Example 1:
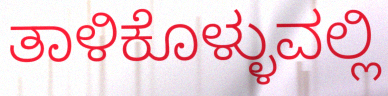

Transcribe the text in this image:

ತಾಳಿಕೊಳ್ಳುವಲ್ಲಿ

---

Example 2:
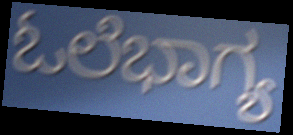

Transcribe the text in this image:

ಓಲೆಭಾಗ್ಯ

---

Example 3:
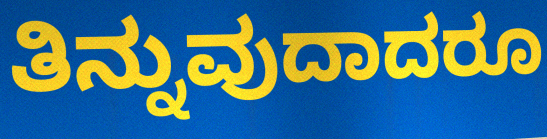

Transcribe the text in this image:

ತಿನ್ನುವುದಾದರೂ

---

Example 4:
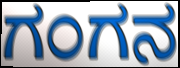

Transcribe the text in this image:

ಗಂಗನ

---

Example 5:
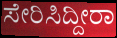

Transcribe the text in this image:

ಸೇರಿಸಿದ್ದೀರಾ